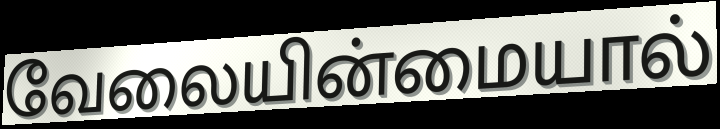
வேலையின்மையால்